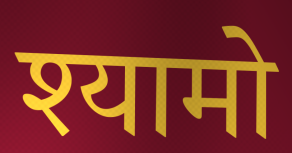
श्यामो